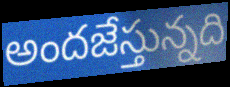
అందజేస్తున్నది